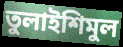
তুলাইশিমুল